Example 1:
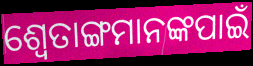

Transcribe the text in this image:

ଶ୍ୱେତାଙ୍ଗମାନଙ୍କପାଇଁ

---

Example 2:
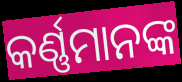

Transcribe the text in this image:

କର୍ଣ୍ଣମାନଙ୍କ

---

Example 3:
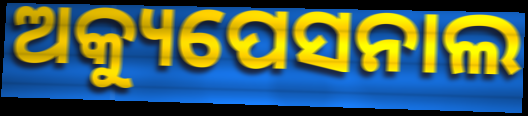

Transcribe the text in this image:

ଅକ୍ୟୁପେସନାଲ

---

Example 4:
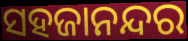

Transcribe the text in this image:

ସହଜାନନ୍ଦର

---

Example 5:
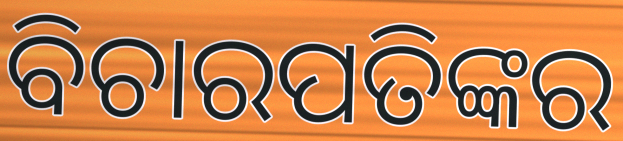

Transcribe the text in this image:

ବିଚାରପତିଙ୍କର